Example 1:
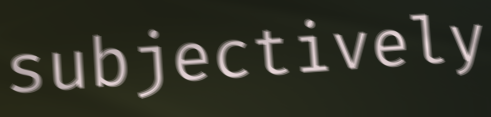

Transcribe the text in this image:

subjectively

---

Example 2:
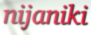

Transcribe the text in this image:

nijaniki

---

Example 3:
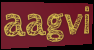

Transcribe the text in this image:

aagvi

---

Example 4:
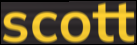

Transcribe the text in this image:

scott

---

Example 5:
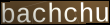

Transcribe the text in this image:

bachchu